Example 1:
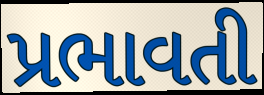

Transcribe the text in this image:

પ્રભાવતી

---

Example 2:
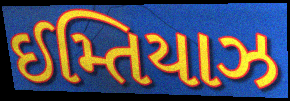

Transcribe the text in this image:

ઈમ્તિયાઝ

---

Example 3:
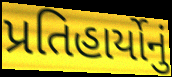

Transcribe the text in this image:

પ્રતિહાર્યોનું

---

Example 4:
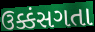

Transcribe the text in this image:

ઉક્કંસગતા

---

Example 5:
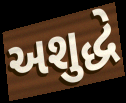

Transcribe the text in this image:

અશુદ્ધે